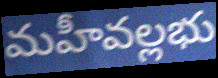
మహీవల్లభు